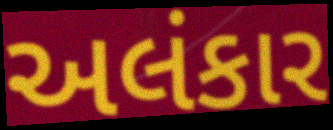
અલંકાર